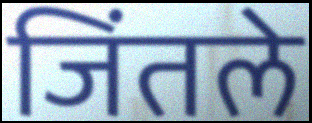
जिंतले